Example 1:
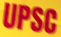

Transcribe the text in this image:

UPSC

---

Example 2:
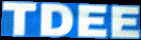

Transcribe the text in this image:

TDEE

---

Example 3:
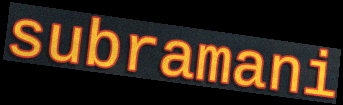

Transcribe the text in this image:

subramani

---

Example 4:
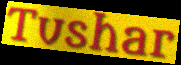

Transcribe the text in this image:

Tushar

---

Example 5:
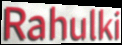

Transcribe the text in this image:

Rahulki